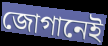
জোগানেই